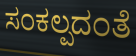
ಸಂಕಲ್ಪದಂತೆ